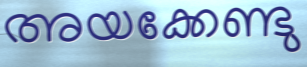
അയക്കേണ്ടു